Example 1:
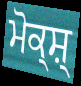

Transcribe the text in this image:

ਮੋਕ੍ਸ਼੍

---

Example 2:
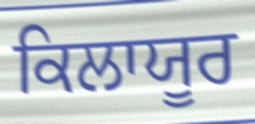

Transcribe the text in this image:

ਕਿਲਾਯੂਰ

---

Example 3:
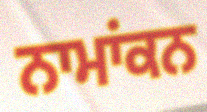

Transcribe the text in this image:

ਨਾਮਾਂਕਨ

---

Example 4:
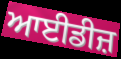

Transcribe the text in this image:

ਆਈਡੀਜ਼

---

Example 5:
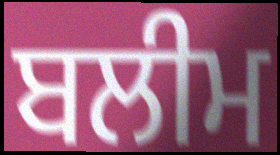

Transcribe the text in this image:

ਬਲੀਮ